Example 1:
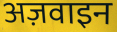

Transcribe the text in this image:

अज़वाइन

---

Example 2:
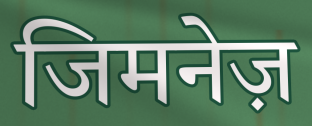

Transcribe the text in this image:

जिमनेज़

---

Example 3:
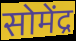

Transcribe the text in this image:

सोमेंद्र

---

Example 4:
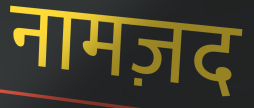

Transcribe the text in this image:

नामज़द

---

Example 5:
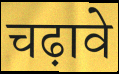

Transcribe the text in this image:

चढ़ावे